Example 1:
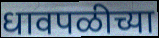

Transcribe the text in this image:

धावपळीच्या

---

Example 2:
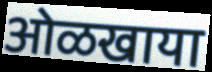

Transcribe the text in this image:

ओळखाया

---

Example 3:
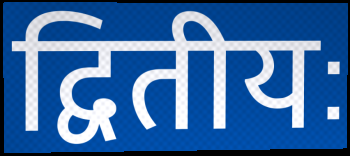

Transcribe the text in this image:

द्वितीयः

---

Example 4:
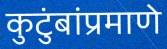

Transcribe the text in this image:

कुटुंबांप्रमाणे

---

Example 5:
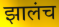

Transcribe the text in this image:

झालंच